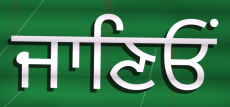
ਜਾਣਿਓਂ